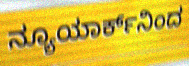
ನ್ಯೂಯಾರ್ಕ್‌ನಿಂದ